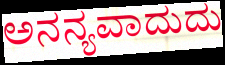
ಅನನ್ಯವಾದುದು